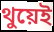
থুয়েই